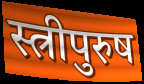
स्त्रीपुरुष